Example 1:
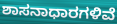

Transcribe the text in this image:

ಶಾಸನಾಧಾರಗಳಿವೆ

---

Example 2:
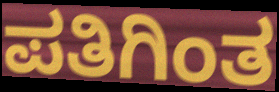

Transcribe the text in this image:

ಪತಿಗಿಂತ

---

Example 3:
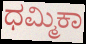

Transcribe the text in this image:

ಧಮ್ಮಿಕಾ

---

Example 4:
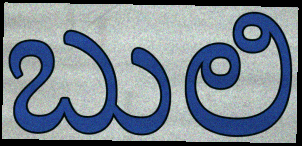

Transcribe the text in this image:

ಬುಲಿ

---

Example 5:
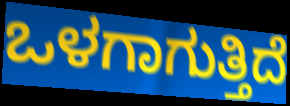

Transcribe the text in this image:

ಒಳಗಾಗುತ್ತಿದೆ